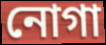
নোগা